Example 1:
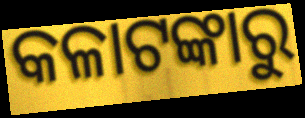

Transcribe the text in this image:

କଳାଟଙ୍କାରୁ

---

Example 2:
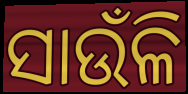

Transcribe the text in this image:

ସାଉଁଳି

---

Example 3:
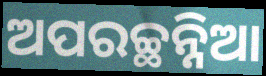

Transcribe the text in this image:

ଅପରଚ୍ଛନ୍ନିଆ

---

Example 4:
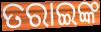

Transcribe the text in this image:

ତରାଇଙ୍କ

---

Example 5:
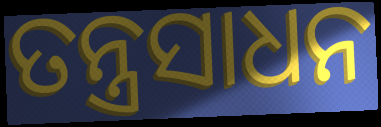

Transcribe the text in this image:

ତନ୍ତ୍ରସାଧନ